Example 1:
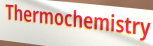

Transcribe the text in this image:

Thermochemistry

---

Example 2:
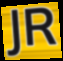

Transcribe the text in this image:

JR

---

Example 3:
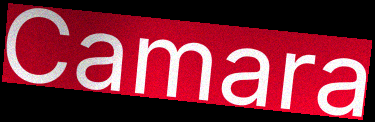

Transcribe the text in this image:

Camara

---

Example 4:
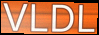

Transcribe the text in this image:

VLDL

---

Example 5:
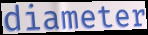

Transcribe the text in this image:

diameter